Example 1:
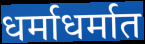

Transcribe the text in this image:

धर्माधर्मात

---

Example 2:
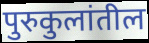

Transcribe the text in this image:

पुरुकुलांतील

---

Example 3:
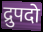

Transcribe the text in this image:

द्रुपदो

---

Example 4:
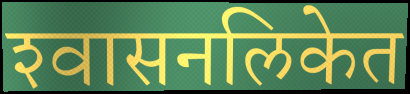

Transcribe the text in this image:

श्वासनलिकेत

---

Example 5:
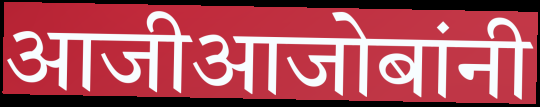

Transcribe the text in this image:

आजीआजोबांनी